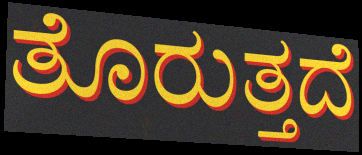
ತೊರುತ್ತದೆ